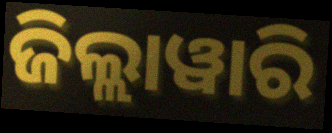
ଜିଲ୍ଲାୱାରି